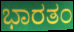
ಭಾರತಂ